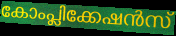
കോംപ്ലിക്കേഷൻസ്